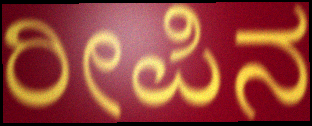
ರೀಪಿನ